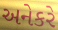
અનેકરે